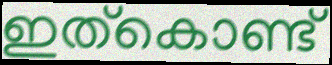
ഇത്കൊണ്ട്